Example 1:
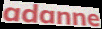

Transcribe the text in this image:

adanne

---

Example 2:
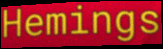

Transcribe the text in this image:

Hemings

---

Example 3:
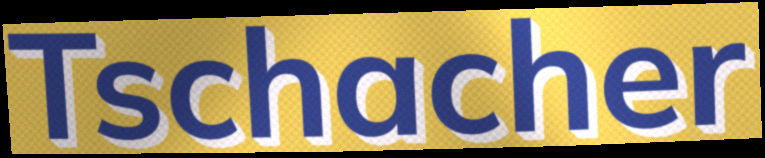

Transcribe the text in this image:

Tschacher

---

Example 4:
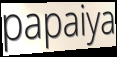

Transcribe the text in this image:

papaiya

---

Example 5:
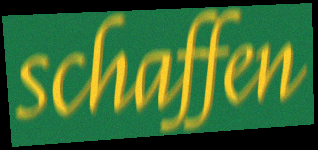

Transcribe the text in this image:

schaffen